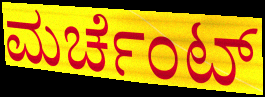
ಮರ್ಚೆಂಟ್